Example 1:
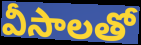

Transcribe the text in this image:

వీసాలతో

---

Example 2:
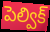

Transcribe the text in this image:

పెల్విక్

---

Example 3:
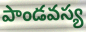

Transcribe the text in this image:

పాండవస్య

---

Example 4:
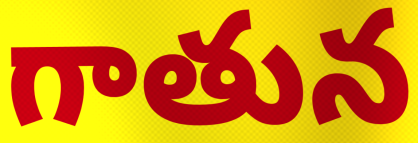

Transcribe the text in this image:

గాతున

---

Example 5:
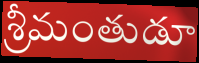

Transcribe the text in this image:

శ్రీమంతుడూ